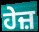
ਹੇਜ਼